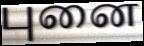
புனை